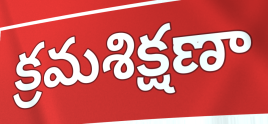
క్రమశిక్షణా